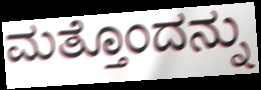
ಮತ್ತೊಂದನ್ನು